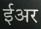
ईअर